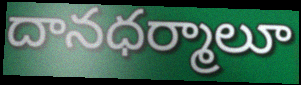
దానధర్మాలూ